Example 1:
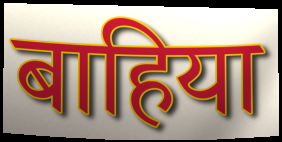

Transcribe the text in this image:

बाहिया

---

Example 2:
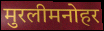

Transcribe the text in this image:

मुरलीमनोहर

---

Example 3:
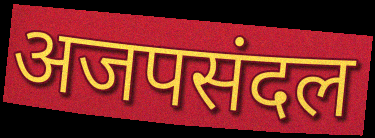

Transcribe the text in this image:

अजपसंदल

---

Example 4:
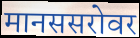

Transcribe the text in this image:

मानससरोवर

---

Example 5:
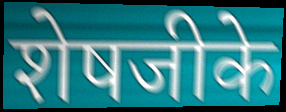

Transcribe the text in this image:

शेषजीके